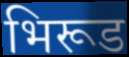
भिरूड